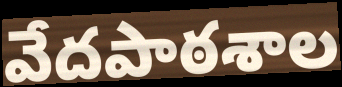
వేదపాఠశాల